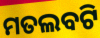
ମତଲବଟି